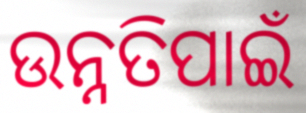
ଉନ୍ନତିପାଇଁ